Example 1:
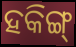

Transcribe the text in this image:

ହକିଙ୍ଗ୍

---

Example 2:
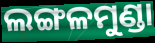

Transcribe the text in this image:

ଲଙ୍ଗଳମୁଣ୍ଡା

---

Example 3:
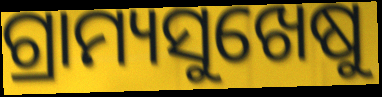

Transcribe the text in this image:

ଗ୍ରାମ୍ୟସୁଖେଷୁ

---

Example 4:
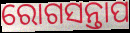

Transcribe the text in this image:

ରୋଗସନ୍ତାପ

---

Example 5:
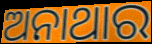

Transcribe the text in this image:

ଅନାଥାର